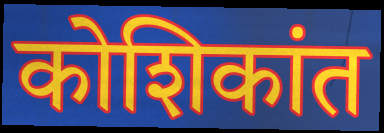
कोशिकांत